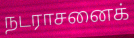
நடராசனைக்